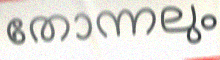
തോന്നലും